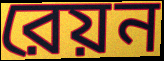
রেয়ন